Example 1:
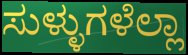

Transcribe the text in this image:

ಸುಳ್ಳುಗಳೆಲ್ಲಾ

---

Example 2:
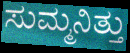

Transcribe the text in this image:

ಸುಮ್ಮನಿತ್ತು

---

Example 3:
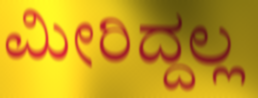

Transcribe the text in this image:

ಮೀರಿದ್ದಲ್ಲ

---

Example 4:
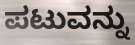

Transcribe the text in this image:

ಪಟುವನ್ನು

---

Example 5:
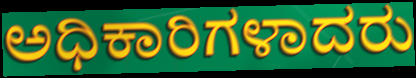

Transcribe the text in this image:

ಅಧಿಕಾರಿಗಳಾದರು